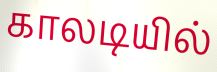
காலடியில்